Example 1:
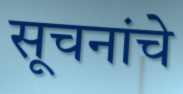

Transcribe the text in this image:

सूचनांचे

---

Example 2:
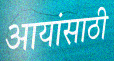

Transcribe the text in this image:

आयांसाठी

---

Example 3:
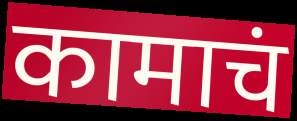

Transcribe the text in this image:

कामाचं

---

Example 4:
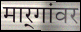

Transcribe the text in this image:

मार्गांवर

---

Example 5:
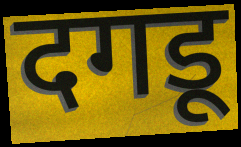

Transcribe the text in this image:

दगडू